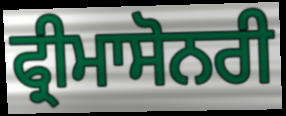
ਫ੍ਰੀਮਾਸੋਨਰੀ